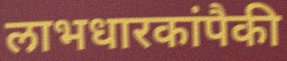
लाभधारकांपैकी